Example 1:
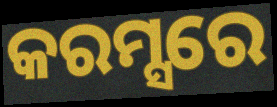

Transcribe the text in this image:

କରମ୍ସରେ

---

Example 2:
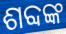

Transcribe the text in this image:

ଶବ୍ଦଙ୍କ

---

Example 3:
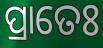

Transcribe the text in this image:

ପ୍ରାତେଃ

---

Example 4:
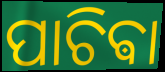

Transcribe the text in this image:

ପାଚିଵା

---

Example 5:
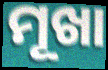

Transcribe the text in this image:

ମୂଖା